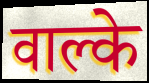
वाल्के